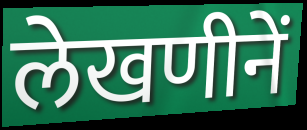
लेखणीनें